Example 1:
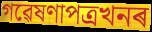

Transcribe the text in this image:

গৱেষণাপত্ৰখনৰ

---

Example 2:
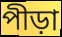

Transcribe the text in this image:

পীড়া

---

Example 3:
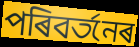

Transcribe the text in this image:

পৰিবৰ্তনেৰ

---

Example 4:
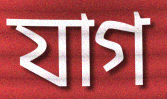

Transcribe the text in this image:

যাগ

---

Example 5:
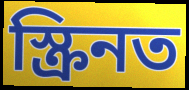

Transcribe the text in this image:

স্ক্ৰিনত